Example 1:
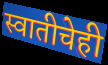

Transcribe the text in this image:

स्वातीचेही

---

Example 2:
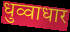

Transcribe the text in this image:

धुव्वाधार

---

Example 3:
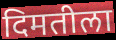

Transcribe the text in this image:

दिमतीला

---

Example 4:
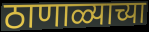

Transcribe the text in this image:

ठाणाळ्याच्या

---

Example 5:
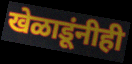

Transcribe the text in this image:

खेळाडूंनीही